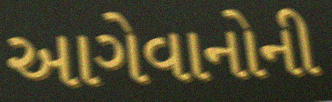
આગેવાનોની